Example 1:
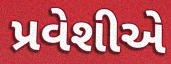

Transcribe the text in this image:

પ્રવેશીએ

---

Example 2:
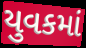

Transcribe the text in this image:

યુવકમાં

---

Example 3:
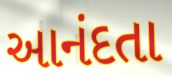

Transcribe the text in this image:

આનંદતા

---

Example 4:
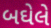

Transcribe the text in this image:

બઘેલે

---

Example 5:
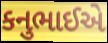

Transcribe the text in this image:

કનુભાઈએ